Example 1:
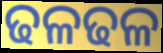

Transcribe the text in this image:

ଢଳଢଳ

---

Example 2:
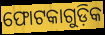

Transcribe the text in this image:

ଫୋଟକାଗୁଡ଼ିକ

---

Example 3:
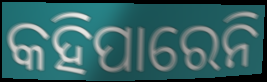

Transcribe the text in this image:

କହିପାରେନି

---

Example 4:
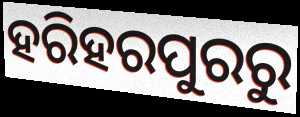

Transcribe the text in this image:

ହରିହରପୁରରୁ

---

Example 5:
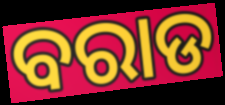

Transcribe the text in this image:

ବରାଡ